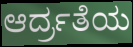
ಆರ್ದ್ರತೆಯ